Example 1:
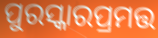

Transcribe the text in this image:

ପୁରସ୍କାରପ୍ରମତ୍ତ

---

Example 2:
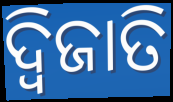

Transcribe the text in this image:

ଦ୍ୱିଜାତି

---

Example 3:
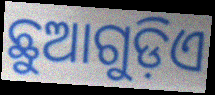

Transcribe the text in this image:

ଛୁଆଗୁଡ଼ିଏ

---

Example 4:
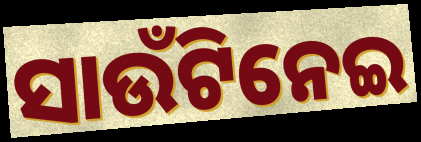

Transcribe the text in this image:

ସାଉଁଟିନେଇ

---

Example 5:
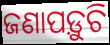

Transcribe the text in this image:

ଜଣାପଡ଼ୁଚି